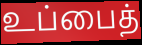
உப்பைத்